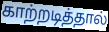
காற்றடித்தால்